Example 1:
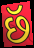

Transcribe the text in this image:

છૅ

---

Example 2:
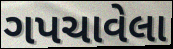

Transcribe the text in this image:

ગપચાવેલા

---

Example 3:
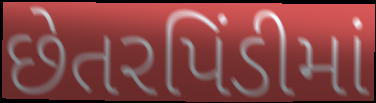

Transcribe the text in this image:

છેતરપિંડીમાં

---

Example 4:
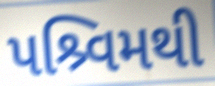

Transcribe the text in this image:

પશ્ર્વિમથી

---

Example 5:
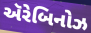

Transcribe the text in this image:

ઍરેબિનોઝ